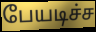
பேயடிச்ச